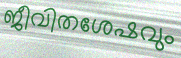
ജീവിതശേഷവും